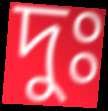
দুঃ